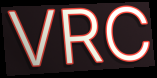
VRC